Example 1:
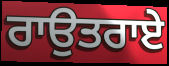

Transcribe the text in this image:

ਰਾਉਤਰਾਏ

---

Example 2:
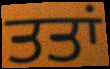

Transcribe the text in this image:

ਤਤਾਂ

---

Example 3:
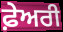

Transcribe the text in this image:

ਫ਼ੇਅਰੀ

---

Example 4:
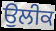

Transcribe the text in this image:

ਉਲੀਕ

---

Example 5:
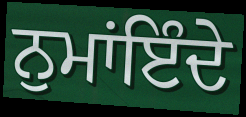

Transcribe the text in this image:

ਨੁਮਾਂਇੰਦੇ